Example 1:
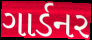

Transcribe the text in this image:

ગાર્ડનર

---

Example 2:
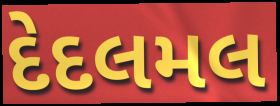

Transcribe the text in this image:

દેદલમલ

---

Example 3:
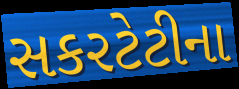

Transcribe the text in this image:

સકરટેટીના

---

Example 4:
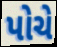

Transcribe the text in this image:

પોચે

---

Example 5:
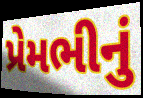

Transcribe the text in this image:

પ્રેમભીનું